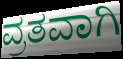
ವ್ರತವಾಗಿ